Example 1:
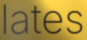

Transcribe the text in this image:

lates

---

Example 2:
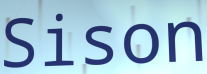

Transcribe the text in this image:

Sison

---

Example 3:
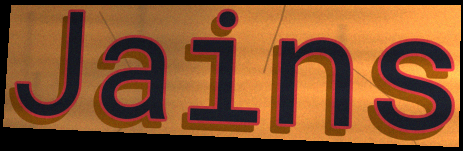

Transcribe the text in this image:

Jains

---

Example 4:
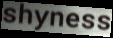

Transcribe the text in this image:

shyness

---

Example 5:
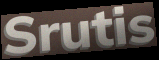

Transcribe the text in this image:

Srutis